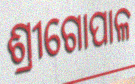
ଶ୍ରୀଗୋପାଳ